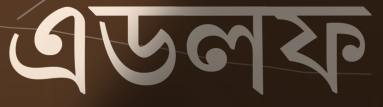
এডলফ